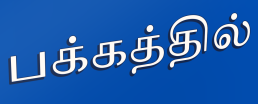
பக்கத்தில்